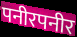
पनीरपनीर